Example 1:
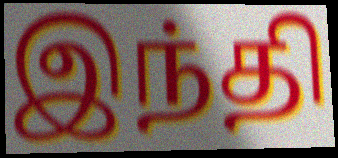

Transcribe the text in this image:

இந்தி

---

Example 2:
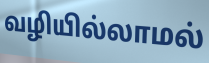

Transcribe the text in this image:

வழியில்லாமல்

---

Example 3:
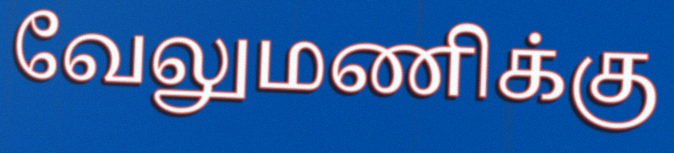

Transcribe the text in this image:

வேலுமணிக்கு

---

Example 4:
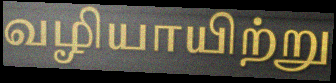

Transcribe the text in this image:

வழியாயிற்று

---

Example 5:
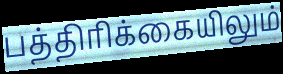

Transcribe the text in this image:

பத்திரிக்கையிலும்